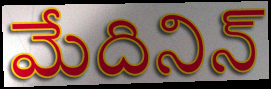
మేదినిన్